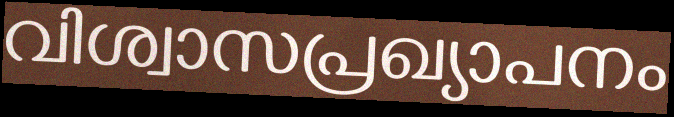
വിശ്വാസപ്രഖ്യാപനം